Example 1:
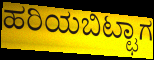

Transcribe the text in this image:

ಹರಿಯಬಿಟ್ಟಾಗ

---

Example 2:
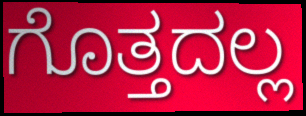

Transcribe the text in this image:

ಗೊತ್ತದಲ್ಲ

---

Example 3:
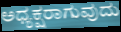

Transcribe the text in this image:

ಅಧ್ಯಕ್ಷರಾಗುವುದು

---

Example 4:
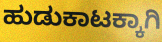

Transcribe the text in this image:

ಹುಡುಕಾಟಕ್ಕಾಗಿ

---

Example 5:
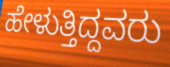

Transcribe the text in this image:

ಹೇಳುತ್ತಿದ್ದವರು